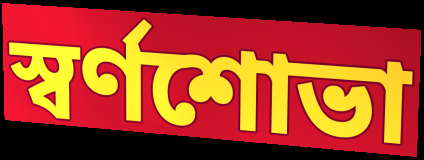
স্বর্ণশোভা